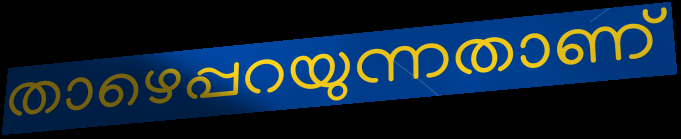
താഴെപ്പറയുന്നതാണ്